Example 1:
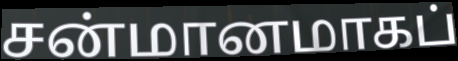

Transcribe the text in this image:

சன்மானமாகப்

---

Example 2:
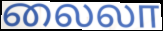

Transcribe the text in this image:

லைலா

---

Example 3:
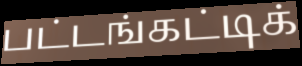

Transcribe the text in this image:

பட்டங்கட்டிக்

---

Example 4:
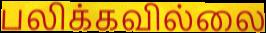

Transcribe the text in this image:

பலிக்கவில்லை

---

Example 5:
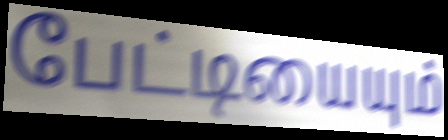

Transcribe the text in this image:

பேட்டியையும்